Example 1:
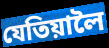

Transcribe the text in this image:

যেতিয়ালৈ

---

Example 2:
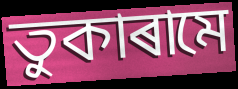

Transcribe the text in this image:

তুকাৰামে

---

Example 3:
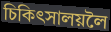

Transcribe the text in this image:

চিকিৎসালয়লৈ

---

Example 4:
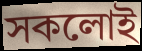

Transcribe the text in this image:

সকলোই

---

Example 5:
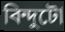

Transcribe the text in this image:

বিন্দুটো